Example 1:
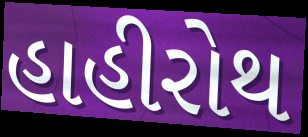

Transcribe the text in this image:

હાહીરોથ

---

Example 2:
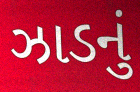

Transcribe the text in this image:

ઝાડનું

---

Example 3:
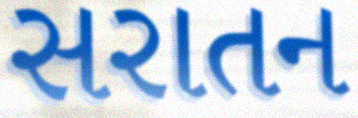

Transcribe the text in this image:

સરાતન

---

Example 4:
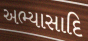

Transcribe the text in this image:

અભ્યાસાદિ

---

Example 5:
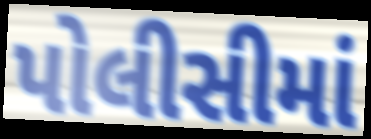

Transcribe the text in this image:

પોલીસીમાં